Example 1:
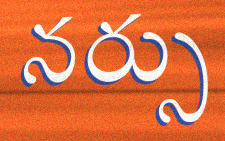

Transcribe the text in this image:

నర్సు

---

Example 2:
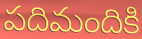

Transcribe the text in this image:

పదిమందికి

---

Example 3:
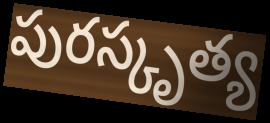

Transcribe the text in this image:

పురస్కృత్య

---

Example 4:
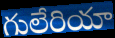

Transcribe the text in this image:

గులేరియా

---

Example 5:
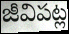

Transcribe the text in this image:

జీవిపట్ల